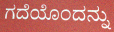
ಗದೆಯೊಂದನ್ನು